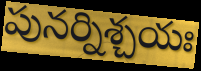
పునర్నిశ్చయః